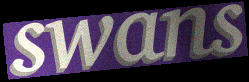
swans